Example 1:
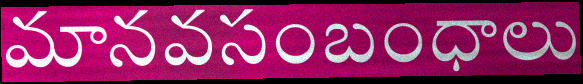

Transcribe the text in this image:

మానవసంబంధాలు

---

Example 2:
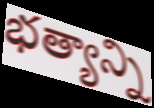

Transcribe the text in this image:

భత్యాన్ని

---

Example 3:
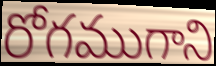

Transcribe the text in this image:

రోగముగాని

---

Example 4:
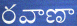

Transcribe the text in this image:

రవాణా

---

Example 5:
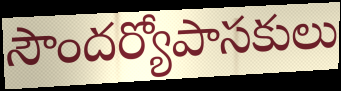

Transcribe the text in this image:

సౌందర్యోపాసకులు